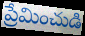
ప్రేమించుడి